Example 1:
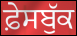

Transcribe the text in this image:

ਫ਼ੇਸਬੁੱਕ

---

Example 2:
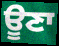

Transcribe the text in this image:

ਊਣਾ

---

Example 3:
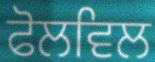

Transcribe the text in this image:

ਫੋਲਵਿਲ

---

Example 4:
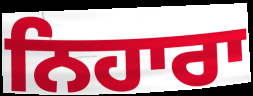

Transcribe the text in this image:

ਨਿਹਾਰਾ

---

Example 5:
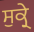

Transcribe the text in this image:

ਸੁਕ੍ਰੇ